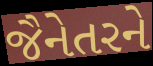
જૈનેતરને